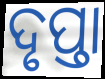
ଦୃପ୍ତା